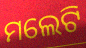
ମଲେଟି